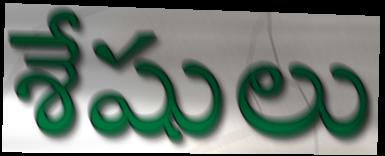
శేషులు